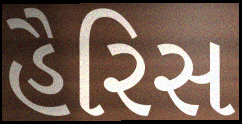
હૈરિસ